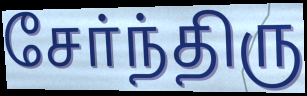
சேர்ந்திரு